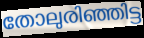
തോലുരിഞ്ഞിട്ട